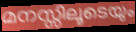
മനസ്സിലൂടെയും